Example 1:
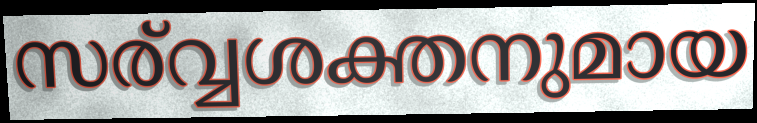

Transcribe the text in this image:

സര്വ്വശക്തനുമായ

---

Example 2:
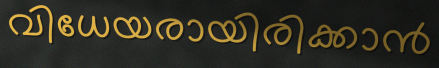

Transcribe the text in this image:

വിധേയരായിരിക്കാൻ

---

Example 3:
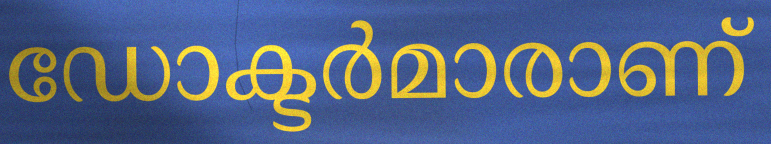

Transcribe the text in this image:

ഡോക്ടർമാരാണ്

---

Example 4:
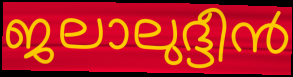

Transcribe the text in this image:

ജലാലുദ്ദീൻ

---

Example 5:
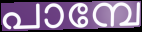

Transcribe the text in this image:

പാമ്പേ